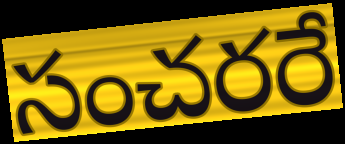
సంచరరే